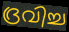
ദ്രവിച്ച